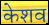
केशव